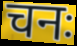
चनः